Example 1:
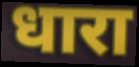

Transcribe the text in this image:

धारा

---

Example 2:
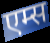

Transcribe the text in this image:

एम्स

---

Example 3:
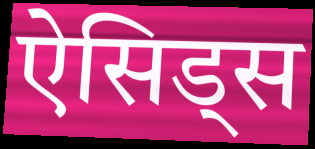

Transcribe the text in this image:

ऐसिड्स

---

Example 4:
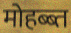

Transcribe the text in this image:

मोहब्ब्त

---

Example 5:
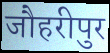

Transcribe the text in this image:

जौहरीपुर